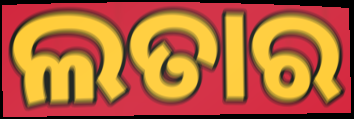
ଲତାର